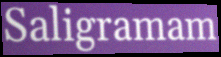
Saligramam